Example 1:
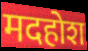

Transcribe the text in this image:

मदहोश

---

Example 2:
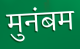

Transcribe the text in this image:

मुनंबम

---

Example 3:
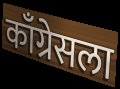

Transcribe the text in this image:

काँग्रेसला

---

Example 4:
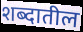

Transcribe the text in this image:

शब्दातील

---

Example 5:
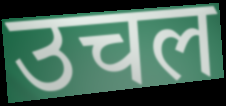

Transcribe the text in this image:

उचल